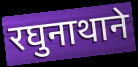
रघुनाथाने